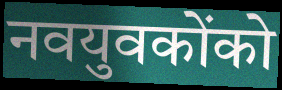
नवयुवकोंको